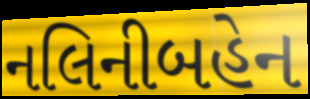
નલિનીબહેન